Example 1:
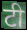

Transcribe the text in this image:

टी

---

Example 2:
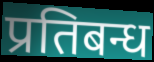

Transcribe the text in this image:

प्रतिबन्ध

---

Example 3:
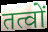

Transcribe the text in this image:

तत्वों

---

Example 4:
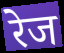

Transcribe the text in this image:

रेज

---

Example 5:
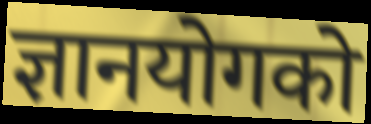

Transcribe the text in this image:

ज्ञानयोगको